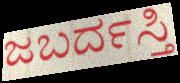
ಜಬರ್ದಸ್ತಿ